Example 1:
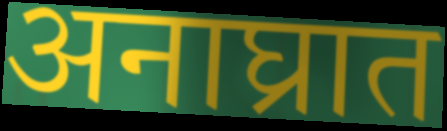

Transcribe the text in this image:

अनाघ्रात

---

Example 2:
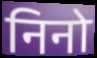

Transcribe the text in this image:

निनो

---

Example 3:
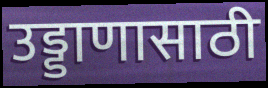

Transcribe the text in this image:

उड्डाणासाठी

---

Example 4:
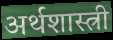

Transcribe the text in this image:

अर्थशास्त्री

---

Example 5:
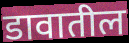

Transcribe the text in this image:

डावातील